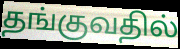
தங்குவதில்